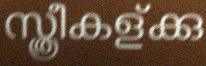
സ്ത്രീകള്ക്കു